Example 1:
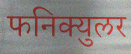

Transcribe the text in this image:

फनिक्युलर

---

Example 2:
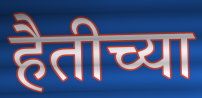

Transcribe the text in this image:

हैतीच्या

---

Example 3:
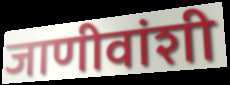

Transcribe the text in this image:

जाणीवांशी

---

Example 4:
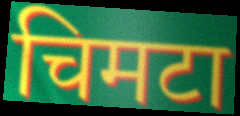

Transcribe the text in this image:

चिमटा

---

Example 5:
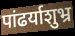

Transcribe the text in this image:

पांढर्याशुभ्र